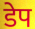
डेप